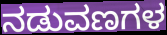
ನಡುವಣಗಳ